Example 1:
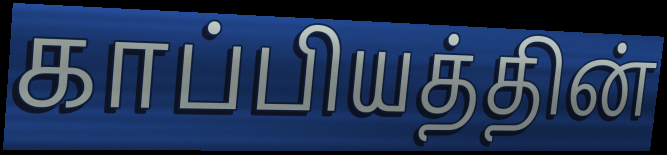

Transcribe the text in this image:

காப்பியத்தின்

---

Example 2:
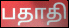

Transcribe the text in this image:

பதாதி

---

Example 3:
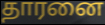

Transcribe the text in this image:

தாரனை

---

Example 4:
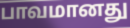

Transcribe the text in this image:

பாவமானது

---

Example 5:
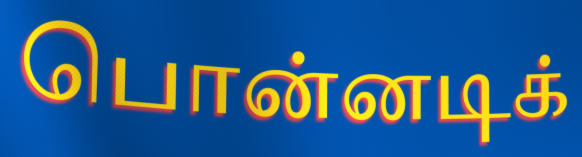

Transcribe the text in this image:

பொன்னடிக்